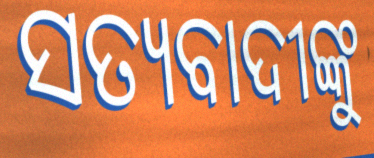
ସତ୍ୟବାଦୀଙ୍କୁ